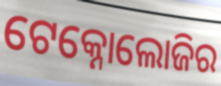
ଟେକ୍ନୋଲୋଜିର